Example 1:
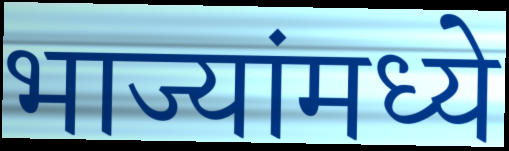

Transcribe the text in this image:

भाज्यांमध्ये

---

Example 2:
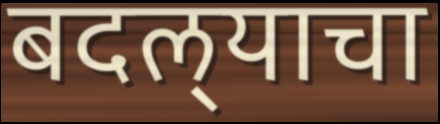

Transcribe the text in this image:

बदल्याचा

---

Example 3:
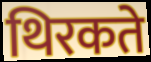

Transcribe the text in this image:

थिरकते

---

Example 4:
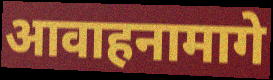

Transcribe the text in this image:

आवाहनामागे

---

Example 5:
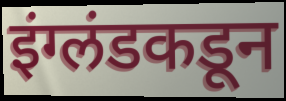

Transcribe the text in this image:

इंग्लंडकडून